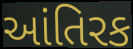
આંતિરક